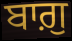
ਬਾਗ਼ੁ